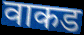
वाकड